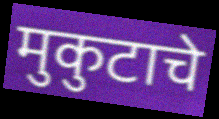
मुकुटाचे